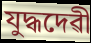
যুদ্ধদেৱী